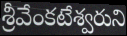
శ్రీవేంకటేశ్వరుని